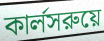
কার্লসরুয়ে